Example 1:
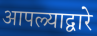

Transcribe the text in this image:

आपल्याद्वारे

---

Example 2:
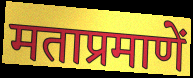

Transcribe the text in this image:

मताप्रमाणें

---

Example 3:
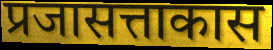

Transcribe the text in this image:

प्रजासत्ताकास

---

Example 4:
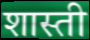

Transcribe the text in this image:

शास्ती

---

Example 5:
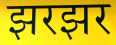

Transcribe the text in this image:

झरझर